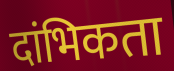
दांभिकता